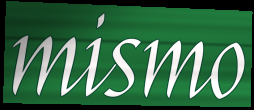
mismo